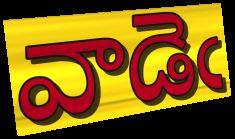
వాడెఁ